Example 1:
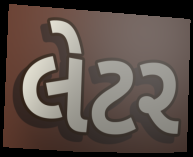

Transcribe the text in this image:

લેટર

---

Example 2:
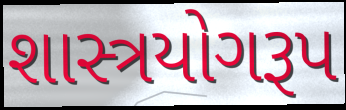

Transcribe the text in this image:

શાસ્ત્રયોગરૂપ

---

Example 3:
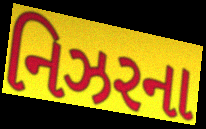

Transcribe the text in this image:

નિઝરના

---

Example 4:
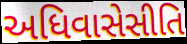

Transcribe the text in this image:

અધિવાસેસીતિ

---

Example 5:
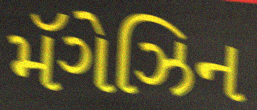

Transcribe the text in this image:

મૅગેઝિન